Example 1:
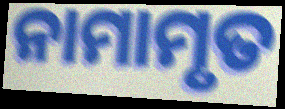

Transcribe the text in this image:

ନାମାମୃତ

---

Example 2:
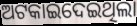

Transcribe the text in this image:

ଅଟକାଇଦେଇଥିଲା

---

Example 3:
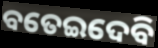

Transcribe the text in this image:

ବତେଇଦେବି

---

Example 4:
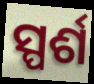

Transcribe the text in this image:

ସ୍ପର୍ଶ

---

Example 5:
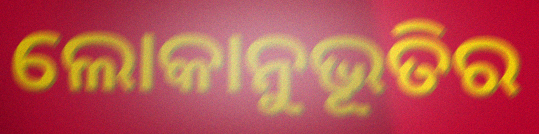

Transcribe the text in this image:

ଲୋକାନୁଭୂତିର